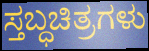
ಸ್ತಬ್ಧಚಿತ್ರಗಳು